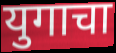
युगाचा